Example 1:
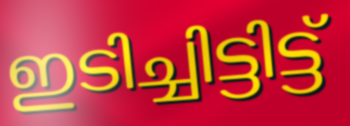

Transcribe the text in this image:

ഇടിച്ചിട്ടിട്ട്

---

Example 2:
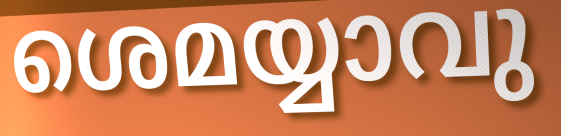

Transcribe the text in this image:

ശെമയ്യാവു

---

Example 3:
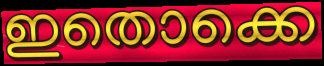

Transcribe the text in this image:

ഇതൊക്കെ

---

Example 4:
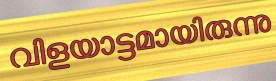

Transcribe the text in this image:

വിളയാട്ടമായിരുന്നു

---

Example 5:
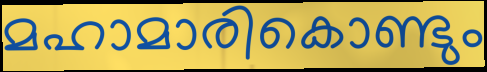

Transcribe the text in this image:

മഹാമാരികൊണ്ടും